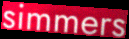
simmers